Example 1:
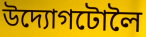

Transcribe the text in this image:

উদ্যোগটোলৈ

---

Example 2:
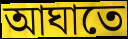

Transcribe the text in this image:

আঘাতে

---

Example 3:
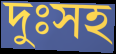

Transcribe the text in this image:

দুঃসহ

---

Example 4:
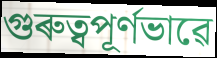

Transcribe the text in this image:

গুৰুত্বপূৰ্ণভাৱে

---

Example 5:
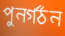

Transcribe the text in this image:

পুনৰ্গঠন